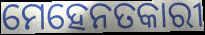
ମେହେନତକାରୀ